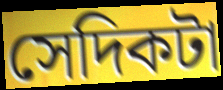
সেদিকটা